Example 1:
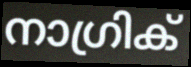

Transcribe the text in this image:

നാഗ്രിക്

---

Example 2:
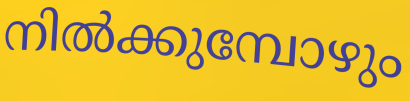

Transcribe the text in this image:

നിൽക്കുമ്പോഴും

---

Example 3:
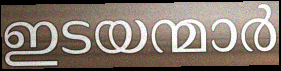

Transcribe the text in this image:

ഇടയന്മാർ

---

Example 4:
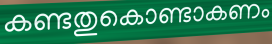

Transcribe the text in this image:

കണ്ടതുകൊണ്ടാകണം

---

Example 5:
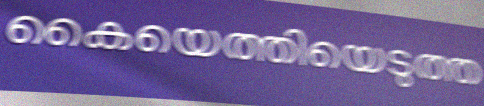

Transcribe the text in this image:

കൈയെത്തിയെടുത്ത